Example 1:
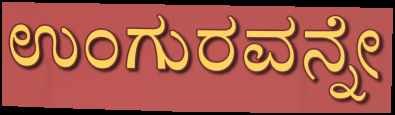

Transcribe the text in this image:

ಉಂಗುರವನ್ನೇ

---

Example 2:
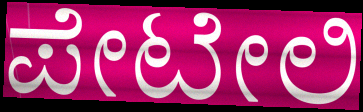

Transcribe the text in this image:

ಪೇಟೇಲಿ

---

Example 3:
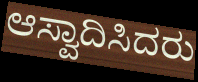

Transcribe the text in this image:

ಆಸ್ವಾದಿಸಿದರು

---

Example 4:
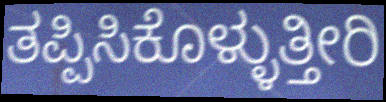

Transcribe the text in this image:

ತಪ್ಪಿಸಿಕೊಳ್ಳುತ್ತೀರಿ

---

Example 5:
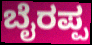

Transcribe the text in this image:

ಬೈರಪ್ಪ